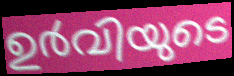
ഉർവിയുടെ